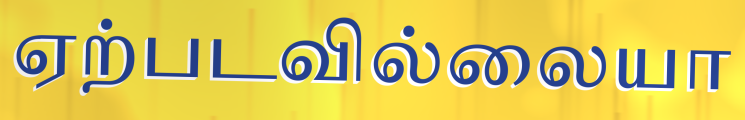
ஏற்படவில்லையா